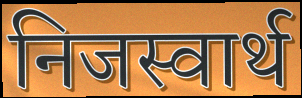
निजस्वार्थ